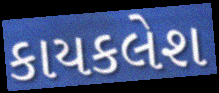
કાયકલેશ